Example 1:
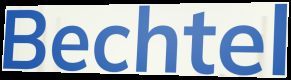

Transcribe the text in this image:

Bechtel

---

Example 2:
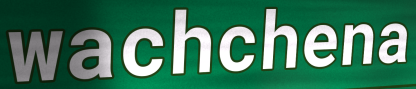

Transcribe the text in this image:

wachchena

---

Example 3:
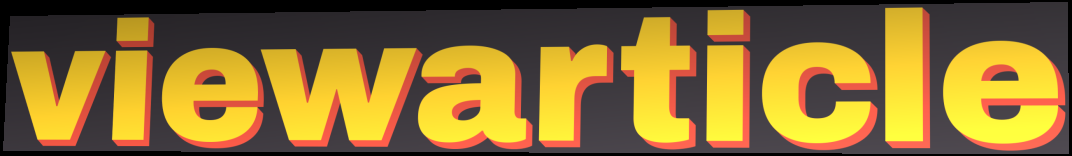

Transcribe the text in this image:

viewarticle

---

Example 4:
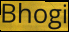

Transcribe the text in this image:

Bhogi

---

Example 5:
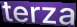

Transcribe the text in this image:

terza